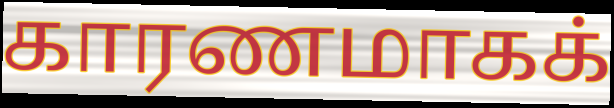
காரணமாகக்